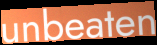
unbeaten